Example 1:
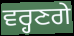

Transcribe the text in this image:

ਵਰ੍ਹਣਗੇ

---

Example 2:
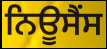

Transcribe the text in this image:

ਨਿਊਸੈਂਸ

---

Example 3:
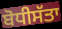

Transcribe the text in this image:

ਬੋਧੀਸੱਤਾ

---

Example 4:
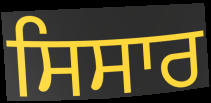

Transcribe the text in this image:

ਸਿਸਾਰ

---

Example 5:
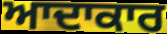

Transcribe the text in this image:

ਆਦਾਕਾਰ